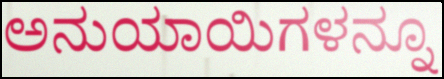
ಅನುಯಾಯಿಗಳನ್ನೂ